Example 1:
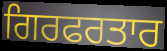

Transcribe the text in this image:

ਗਿਰਫਰਤਾਰ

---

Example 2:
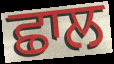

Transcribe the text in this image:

ਛਾਲ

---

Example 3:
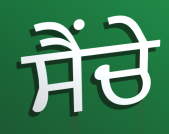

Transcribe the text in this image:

ਸੈਂਚੇ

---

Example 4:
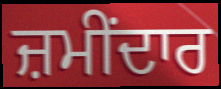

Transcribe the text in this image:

ਜ਼ਮੀਂਦਾਰ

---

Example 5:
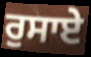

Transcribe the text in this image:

ਰੁਸਾਏ